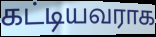
கட்டியவராக